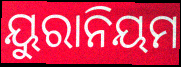
ୟୁରାନିୟମ